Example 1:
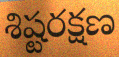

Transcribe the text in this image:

శిష్టరక్షణ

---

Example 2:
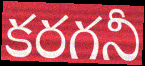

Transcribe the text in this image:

కరగనీ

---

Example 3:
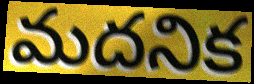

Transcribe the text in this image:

మదనిక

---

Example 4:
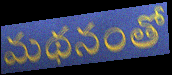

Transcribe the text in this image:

మథనంతో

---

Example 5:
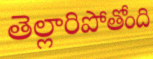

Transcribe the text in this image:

తెల్లారిపోతోంది